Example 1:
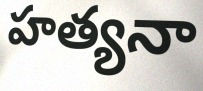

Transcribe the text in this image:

హత్యనా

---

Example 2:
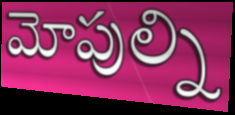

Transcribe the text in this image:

మోపుల్ని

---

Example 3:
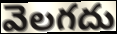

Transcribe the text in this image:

వెలగదు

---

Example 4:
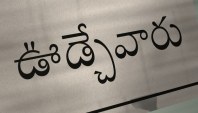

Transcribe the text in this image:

ఊడ్చేవారు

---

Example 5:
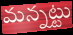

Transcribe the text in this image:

మన్నట్టు